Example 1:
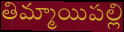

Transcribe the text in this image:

తిమ్మాయిపల్లి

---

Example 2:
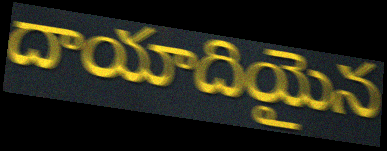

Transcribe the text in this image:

దాయాదియైన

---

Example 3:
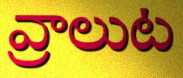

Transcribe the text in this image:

వ్రాలుట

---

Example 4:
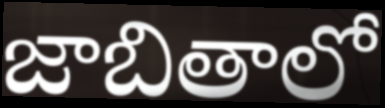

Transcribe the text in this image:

జాబితాలో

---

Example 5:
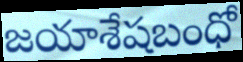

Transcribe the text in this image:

జయాశేషబంధో